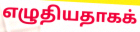
எழுதியதாகக்